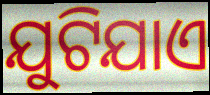
ଯୁଟିଯାଏ